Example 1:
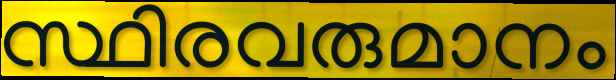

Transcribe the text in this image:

സ്ഥിരവരുമാനം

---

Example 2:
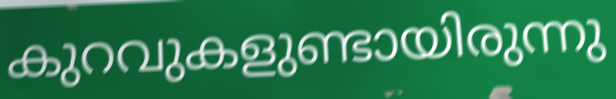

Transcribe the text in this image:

കുറവുകളുണ്ടായിരുന്നു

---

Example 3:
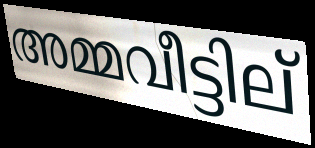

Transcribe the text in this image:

അമ്മവീട്ടില്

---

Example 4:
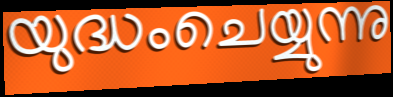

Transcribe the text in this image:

യുദ്ധംചെയ്യുന്നു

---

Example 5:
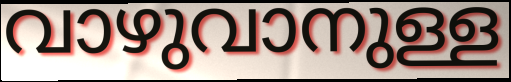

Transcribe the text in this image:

വാഴുവാനുള്ള